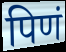
पिणं